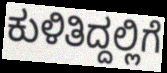
ಕುಳಿತಿದ್ದಲ್ಲಿಗೆ